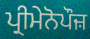
ਪ੍ਰੀਮੇਨੋਪੌਜ਼